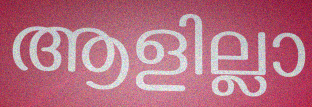
ആളില്ലാ